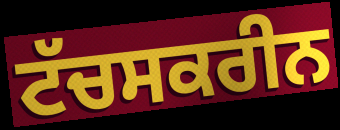
ਟੱਚਸਕਰੀਨ